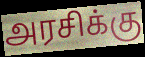
அரசிக்கு